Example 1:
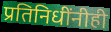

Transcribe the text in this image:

प्रतिनिधींनीही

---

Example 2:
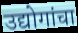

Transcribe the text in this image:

उद्योगांचा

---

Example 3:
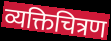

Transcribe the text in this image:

व्यक्तिचित्रण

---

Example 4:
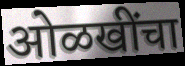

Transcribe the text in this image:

ओळखींचा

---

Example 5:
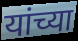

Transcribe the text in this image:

यांच्‍या